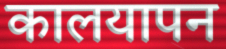
कालयापन